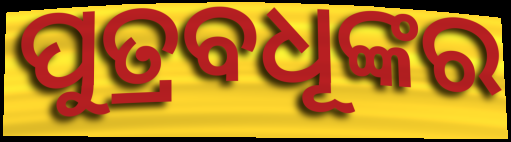
ପୁତ୍ରବଧୂଙ୍କର